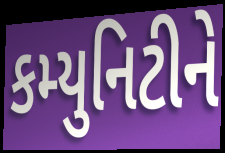
કમ્યુનિટીને